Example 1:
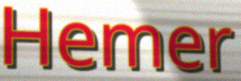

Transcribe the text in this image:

Hemer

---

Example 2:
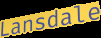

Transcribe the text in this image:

Lansdale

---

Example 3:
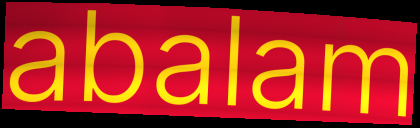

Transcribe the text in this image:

abalam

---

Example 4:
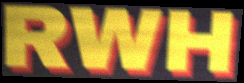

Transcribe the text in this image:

RWH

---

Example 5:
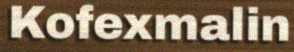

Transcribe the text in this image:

Kofexmalin